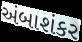
અંબાશંકર